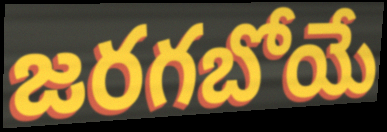
జరగబోయే